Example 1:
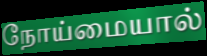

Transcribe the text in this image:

நோய்மையால்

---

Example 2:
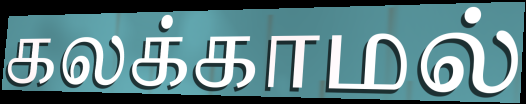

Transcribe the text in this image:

கலக்காமல்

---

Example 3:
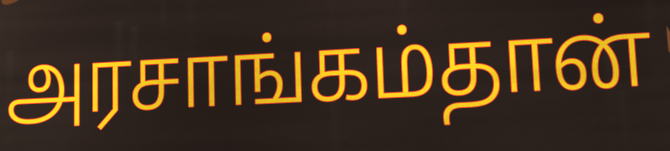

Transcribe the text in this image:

அரசாங்கம்தான்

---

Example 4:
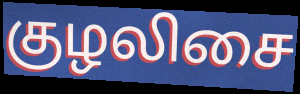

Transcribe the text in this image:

குழலிசை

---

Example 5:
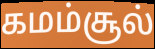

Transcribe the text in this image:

கமம்சூல்